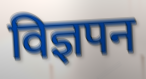
विज्ञपन